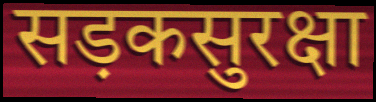
सड़कसुरक्षा